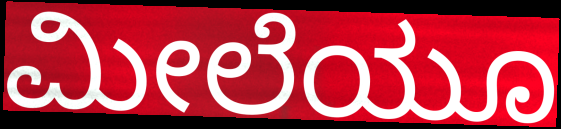
ಮೀಲೆಯೂ